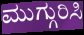
ಮುಗ್ಗುರಿಸಿ